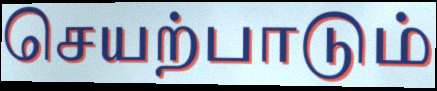
செயற்பாடும்